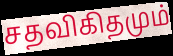
சதவிகிதமும்